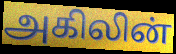
அகிலின்